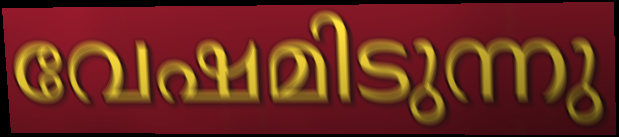
വേഷമിടുന്നു